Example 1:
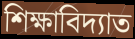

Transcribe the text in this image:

শিক্ষাবিদ্যাত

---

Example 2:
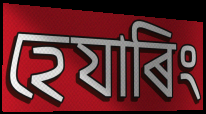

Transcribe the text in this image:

হেযাৰিং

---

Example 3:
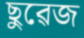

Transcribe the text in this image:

ছুৱেজ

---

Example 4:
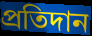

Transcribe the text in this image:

প্ৰতিদান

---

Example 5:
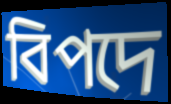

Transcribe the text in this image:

বিপদে